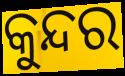
କୁନ୍ଦର